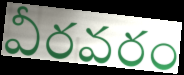
వీరవరం